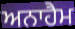
ਅਨਾਹੈਮ